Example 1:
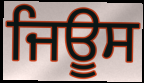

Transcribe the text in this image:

ਜਿਊਸ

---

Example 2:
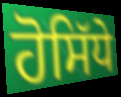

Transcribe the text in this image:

ਹੋਸਿੱਧੇ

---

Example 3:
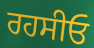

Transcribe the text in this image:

ਰਹਸੀਓ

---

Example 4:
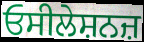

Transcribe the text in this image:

ਓਸੀਲੇਸ਼ਨਜ਼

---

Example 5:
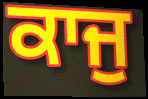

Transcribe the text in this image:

ਕਾਜੁ